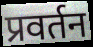
प्रवर्तन